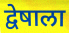
द्वेषाला